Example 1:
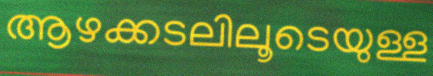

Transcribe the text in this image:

ആഴക്കടലിലൂടെയുള്ള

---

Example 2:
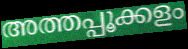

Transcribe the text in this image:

അത്തപ്പൂക്കളം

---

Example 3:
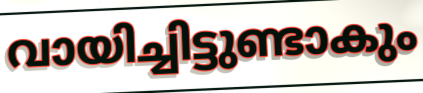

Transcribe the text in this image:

വായിച്ചിട്ടുണ്ടാകും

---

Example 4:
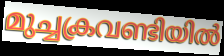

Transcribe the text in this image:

മുച്ചക്രവണ്ടിയിൽ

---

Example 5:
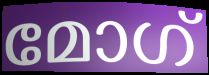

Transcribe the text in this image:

മോഗ്